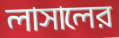
লাসালের